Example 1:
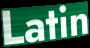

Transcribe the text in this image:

Latin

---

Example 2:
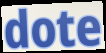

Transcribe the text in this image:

dote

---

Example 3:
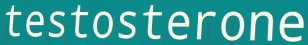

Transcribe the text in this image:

testosterone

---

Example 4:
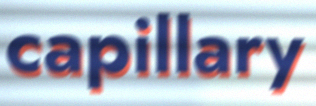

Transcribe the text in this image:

capillary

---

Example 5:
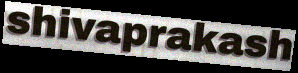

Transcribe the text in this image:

shivaprakash